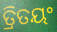
ତ୍ରିତୟଂ